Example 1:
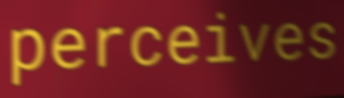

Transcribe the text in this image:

perceives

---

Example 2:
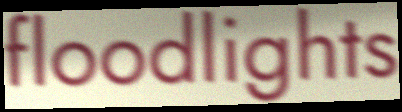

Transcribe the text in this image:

floodlights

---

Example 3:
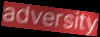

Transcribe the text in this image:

adversity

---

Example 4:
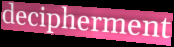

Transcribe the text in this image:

decipherment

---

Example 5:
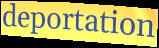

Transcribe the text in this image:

deportation